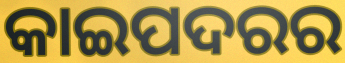
କାଇପଦରର